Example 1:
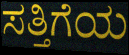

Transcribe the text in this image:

ಸತ್ತಿಗೆಯ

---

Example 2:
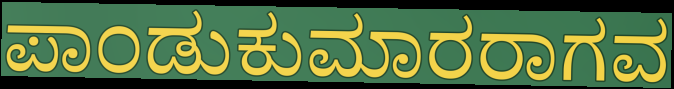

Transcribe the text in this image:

ಪಾಂಡುಕುಮಾರರಾಗವ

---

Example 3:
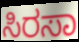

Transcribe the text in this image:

ಸಿರಸಾ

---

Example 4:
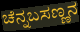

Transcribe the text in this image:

ಚೆನ್ನಬಸಣ್ಣನ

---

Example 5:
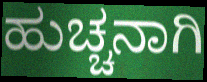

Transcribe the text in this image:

ಹುಚ್ಚನಾಗಿ